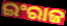
ଇଂରାଜ